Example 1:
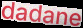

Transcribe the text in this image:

dadane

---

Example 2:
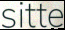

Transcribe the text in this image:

sitte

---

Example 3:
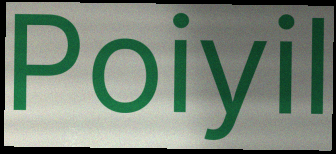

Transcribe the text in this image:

Poiyil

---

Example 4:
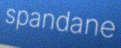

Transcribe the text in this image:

spandane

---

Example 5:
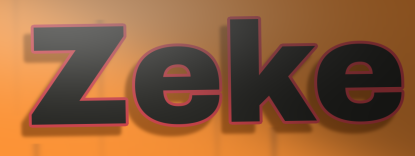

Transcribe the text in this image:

Zeke